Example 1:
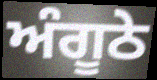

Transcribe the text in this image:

ਅੰਗੂਠੇ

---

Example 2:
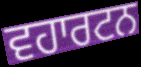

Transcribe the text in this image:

ਵਹਾਰਟਨ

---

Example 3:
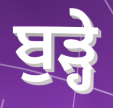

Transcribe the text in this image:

ਬੁੜ੍ਹੇ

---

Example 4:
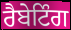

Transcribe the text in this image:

ਰੈਬੇਟਿੰਗ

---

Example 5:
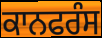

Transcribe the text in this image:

ਕਾਨਫਰੰਸ